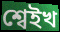
শ্বেইখ